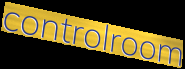
controlroom